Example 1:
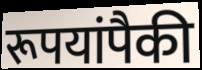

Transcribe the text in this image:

रूपयांपैकी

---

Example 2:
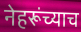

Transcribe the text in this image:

नेहरूंच्याच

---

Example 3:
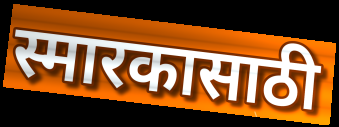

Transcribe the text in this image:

स्मारकासाठी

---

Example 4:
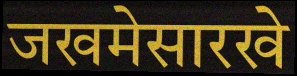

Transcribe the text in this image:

जखमेसारखे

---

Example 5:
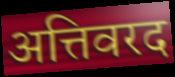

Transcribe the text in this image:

अत्तिवरद